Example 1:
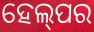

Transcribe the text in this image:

ହେଲ୍‌ପର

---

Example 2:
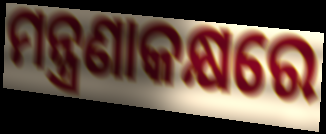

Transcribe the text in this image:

ମନ୍ତ୍ରଣାକକ୍ଷରେ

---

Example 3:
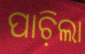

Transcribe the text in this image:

ପାଚ଼ିଲା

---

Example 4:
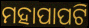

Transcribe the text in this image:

ମହାପାପଟି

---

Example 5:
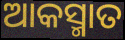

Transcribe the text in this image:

ଆକସ୍ମାତ